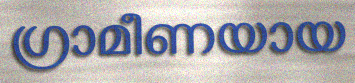
ഗ്രാമീണയായ